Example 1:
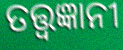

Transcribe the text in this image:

ତତ୍ତ୍ଵଜ୍ଞାନୀ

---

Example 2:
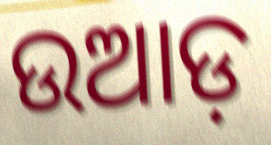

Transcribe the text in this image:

ଉଆଡ଼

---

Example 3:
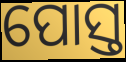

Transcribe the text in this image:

ପୋସ୍ତ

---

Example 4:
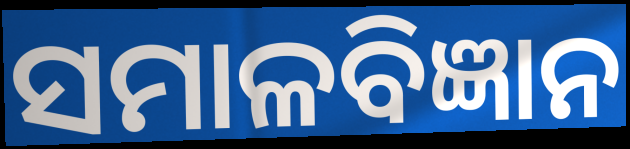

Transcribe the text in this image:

ସମାଳବିଜ୍ଞାନ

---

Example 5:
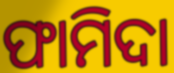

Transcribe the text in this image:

ଫାମିଦା